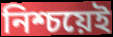
নিশ্চয়েই